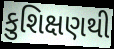
કુશિક્ષણથી